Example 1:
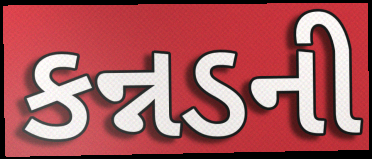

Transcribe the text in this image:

કન્નડની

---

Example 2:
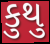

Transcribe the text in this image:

કુથુ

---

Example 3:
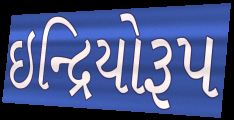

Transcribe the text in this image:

ઇન્દ્રિયોરૂપ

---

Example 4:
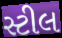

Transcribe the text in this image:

સ્ટીલ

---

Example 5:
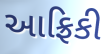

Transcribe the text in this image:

આફ્રિકી